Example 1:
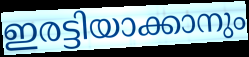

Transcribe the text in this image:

ഇരട്ടിയാക്കാനും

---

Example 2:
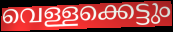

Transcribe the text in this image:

വെള്ളക്കെട്ടും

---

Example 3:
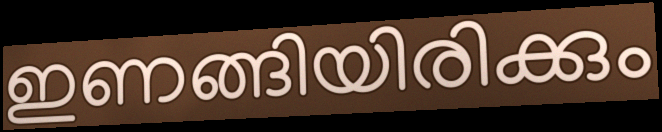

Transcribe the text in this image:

ഇണങ്ങിയിരിക്കും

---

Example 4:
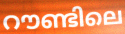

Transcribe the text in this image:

റൗണ്ടിലെ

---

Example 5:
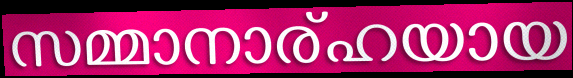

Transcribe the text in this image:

സമ്മാനാര്ഹയായ